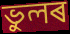
ভুলৰ